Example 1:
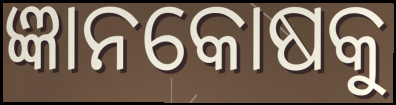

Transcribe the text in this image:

ଜ୍ଞାନକୋଷକୁ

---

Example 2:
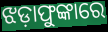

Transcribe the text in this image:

ଝଡ଼ାଫୁଙ୍କାରେ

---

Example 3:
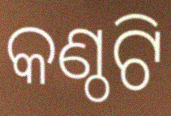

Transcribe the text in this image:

କଣ୍ଠଟି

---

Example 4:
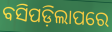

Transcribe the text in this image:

ବସିପଡ଼ିଲାପରେ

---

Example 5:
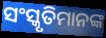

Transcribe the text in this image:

ସଂସ୍କୃତିମାନଙ୍କ